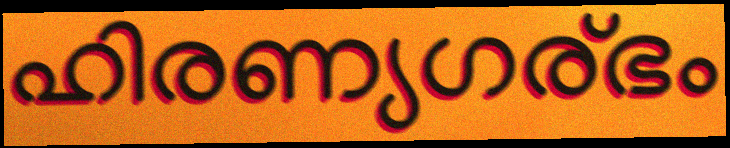
ഹിരണ്യഗര്ഭം